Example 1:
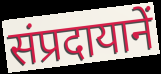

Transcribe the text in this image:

संप्रदायानें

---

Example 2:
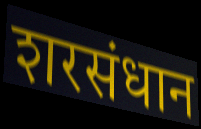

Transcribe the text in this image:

शरसंधान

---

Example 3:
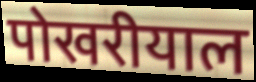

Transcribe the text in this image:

पोखरीयाल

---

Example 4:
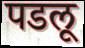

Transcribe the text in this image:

पडलू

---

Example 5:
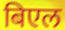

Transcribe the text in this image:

बिएल